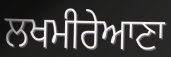
ਲਖਮੀਰੇਆਣਾ